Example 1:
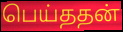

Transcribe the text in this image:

பெய்ததன்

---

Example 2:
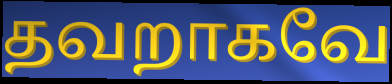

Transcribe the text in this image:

தவறாகவே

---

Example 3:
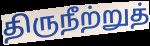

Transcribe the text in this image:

திருநீற்றுத்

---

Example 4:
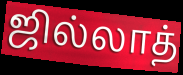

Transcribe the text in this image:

ஜில்லாத்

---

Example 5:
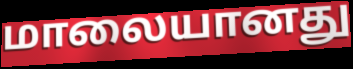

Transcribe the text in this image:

மாலையானது